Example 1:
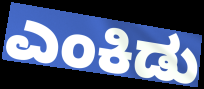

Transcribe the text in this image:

ಎಂಕಿಡು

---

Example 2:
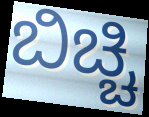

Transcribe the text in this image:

ಬಿಚ್ಚಿ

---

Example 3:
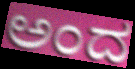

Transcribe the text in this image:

ಅಂದ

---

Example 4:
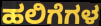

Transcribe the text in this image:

ಹಲಿಗೆಗಳ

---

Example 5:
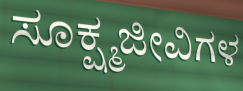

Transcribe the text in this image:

ಸೂಕ್ಷ್ಮಜೀವಿಗಳ